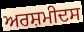
ਅਰਸ਼ਮੀਦਸ